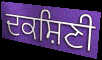
ਦਕਸ਼ਿਣੀ